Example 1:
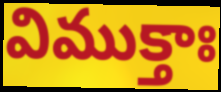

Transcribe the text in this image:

విముక్తాః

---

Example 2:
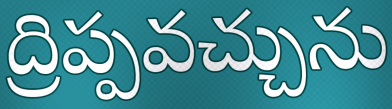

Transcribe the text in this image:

ద్రిప్పవచ్చును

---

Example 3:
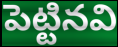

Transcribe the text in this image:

పెట్టినవి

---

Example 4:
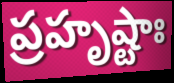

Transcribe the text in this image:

ప్రహృష్టాః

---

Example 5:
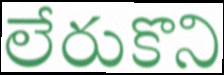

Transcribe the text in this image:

లేరుకొని